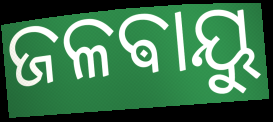
ଜଳଵାୟୁ